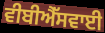
ਵੀਬੀਐੱਸਵਾਈ